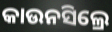
କାଉନସିଲ୍ରେ